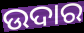
ଉଦାର